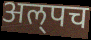
अल्पच